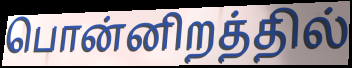
பொன்னிறத்தில்